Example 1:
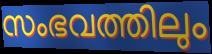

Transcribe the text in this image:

സംഭവത്തിലും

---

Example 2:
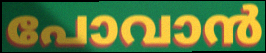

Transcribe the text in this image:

പോവാൻ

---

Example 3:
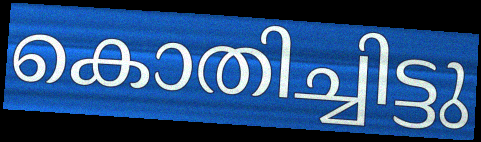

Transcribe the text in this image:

കൊതിച്ചിട്ടു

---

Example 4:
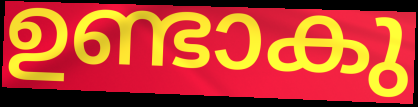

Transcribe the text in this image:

ഉണ്ടാകു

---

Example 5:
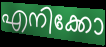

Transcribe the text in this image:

എനിക്കോ